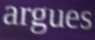
argues